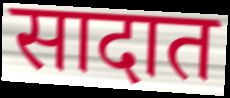
सादात